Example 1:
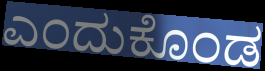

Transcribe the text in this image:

ಎಂದುಕೊಂಡ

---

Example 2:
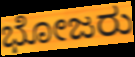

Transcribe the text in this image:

ಭೋಜರು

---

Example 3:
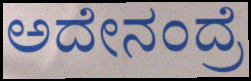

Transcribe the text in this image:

ಅದೇನಂದ್ರೆ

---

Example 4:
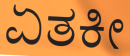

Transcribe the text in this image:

ಏತಕೀ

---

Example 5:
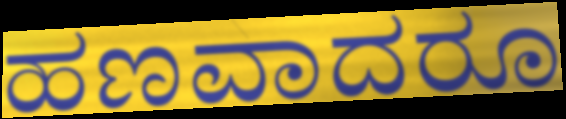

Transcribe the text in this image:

ಹಣವಾದರೂ